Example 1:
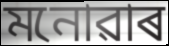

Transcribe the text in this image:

মনোৱাৰ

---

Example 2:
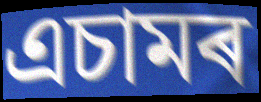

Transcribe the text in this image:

এচামৰ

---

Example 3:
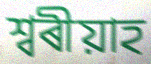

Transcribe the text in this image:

শ্বৰীয়াহ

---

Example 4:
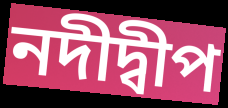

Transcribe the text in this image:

নদীদ্বীপ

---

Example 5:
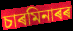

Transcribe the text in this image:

চাৰমিনাৰৰ